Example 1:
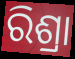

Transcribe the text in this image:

ରିଶ୍ରା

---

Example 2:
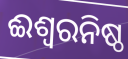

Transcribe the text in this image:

ଈଶ୍ୱରନିଷ୍ଠ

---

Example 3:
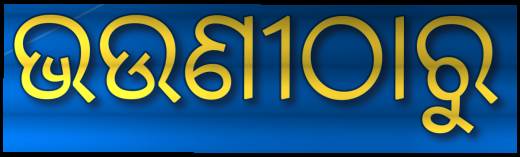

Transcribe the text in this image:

ଭଉଣୀଠାରୁ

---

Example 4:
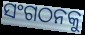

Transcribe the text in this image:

ସଂଗଠନକୁ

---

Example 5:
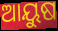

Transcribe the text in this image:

ଆୟୁଷ